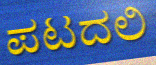
ಪಟದಲಿ